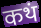
कथं